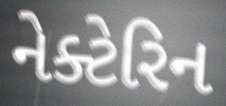
નેક્ટેરિન